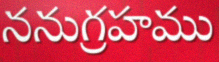
ననుగ్రహము